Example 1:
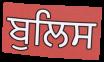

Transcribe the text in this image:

ਬੁਲਿਸ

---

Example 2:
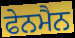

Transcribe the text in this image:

ਫੇਨਮੈਨ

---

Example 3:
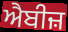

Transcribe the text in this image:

ਐਬੀਜ਼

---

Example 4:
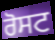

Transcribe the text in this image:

ਰੋਸਟ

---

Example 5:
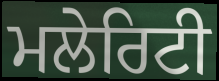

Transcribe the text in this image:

ਮਲੇਰਿਟੀ